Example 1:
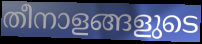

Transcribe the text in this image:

തീനാളങ്ങളുടെ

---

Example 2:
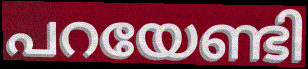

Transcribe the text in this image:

പറയേണ്ടി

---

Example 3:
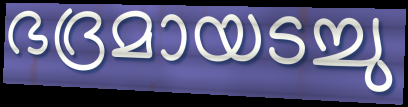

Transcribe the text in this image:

ഭദ്രമായടച്ചു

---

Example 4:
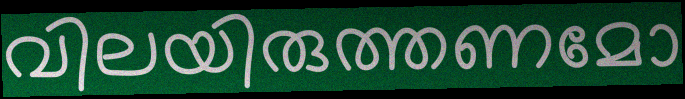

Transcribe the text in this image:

വിലയിരുത്തണമോ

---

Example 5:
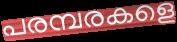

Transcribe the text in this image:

പരമ്പരകളെ